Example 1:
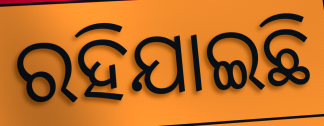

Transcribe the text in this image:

ରହିଯାଇଛି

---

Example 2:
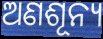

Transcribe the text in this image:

ଅଣଶୂନ୍ୟ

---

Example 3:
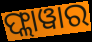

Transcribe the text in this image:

ଫ୍ଲାୱାର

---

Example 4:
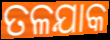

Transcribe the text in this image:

ତଳଯାକ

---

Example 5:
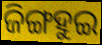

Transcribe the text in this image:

ଜିଙ୍ଗହୁଇ